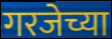
गरजेच्या